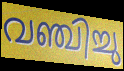
വഞ്ചിച്ചു